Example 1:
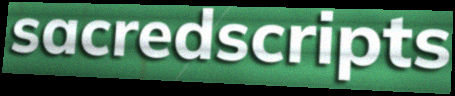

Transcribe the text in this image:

sacredscripts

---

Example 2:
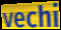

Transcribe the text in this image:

vechi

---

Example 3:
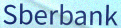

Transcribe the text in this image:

Sberbank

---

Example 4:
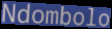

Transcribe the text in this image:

Ndombolo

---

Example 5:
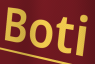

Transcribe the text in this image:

Boti